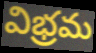
విభ్రమ